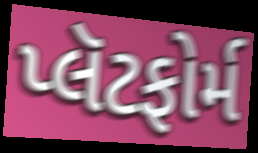
પ્લૅટફોર્મ